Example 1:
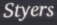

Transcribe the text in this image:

Styers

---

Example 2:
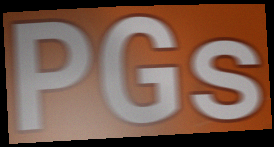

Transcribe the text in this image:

PGs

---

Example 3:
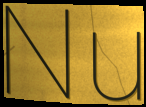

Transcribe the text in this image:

Nu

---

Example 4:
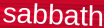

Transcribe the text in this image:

sabbath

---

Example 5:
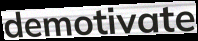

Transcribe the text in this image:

demotivate